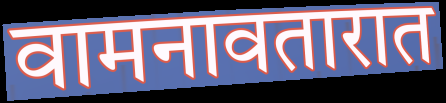
वामनावतारात